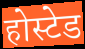
होस्टेड